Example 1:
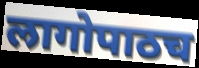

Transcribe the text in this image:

लागोपाठच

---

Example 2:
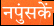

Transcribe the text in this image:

नपुंसकें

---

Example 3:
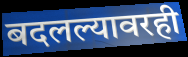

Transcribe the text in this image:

बदलल्यावरही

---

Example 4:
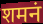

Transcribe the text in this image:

शमनं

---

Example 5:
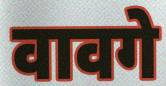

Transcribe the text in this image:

वावगे